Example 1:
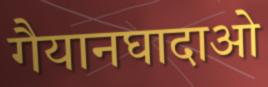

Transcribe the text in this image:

गैयानघादाओ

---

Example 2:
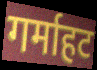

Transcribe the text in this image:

गर्माहट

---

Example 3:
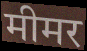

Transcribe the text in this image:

मीमर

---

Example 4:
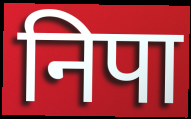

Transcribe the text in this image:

निपा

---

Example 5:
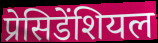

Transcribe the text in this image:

प्रेसिडेंशियल